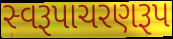
સ્વરૂપાચરણરૂપ